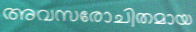
അവസരോചിതമായ